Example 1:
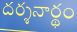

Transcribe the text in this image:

దర్శనార్థం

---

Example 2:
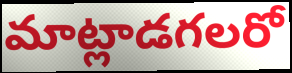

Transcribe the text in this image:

మాట్లాడగలరో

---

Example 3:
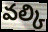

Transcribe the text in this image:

వల్కి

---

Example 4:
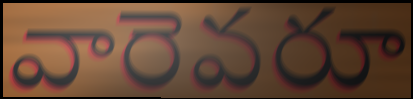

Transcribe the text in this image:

వారెవరూ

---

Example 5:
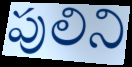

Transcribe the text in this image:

పులిని